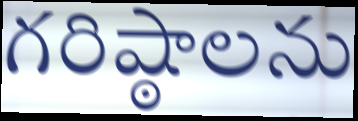
గరిష్ఠాలను